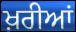
ਖ਼ਰੀਆਂ